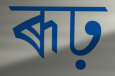
ৰূঢ়